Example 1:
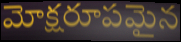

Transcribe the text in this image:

మోక్షరూపమైన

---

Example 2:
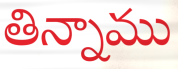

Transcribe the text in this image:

తిన్నాము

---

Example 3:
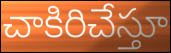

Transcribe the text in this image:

చాకిరిచేస్తూ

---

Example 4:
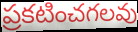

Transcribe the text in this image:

ప్రకటించగలవు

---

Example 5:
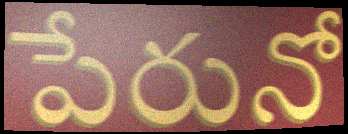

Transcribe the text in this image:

పేరునో